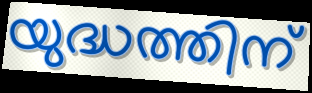
യുദ്ധത്തിന്